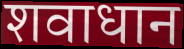
शवाधान